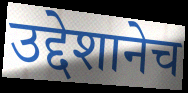
उद्देशानेच